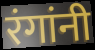
रंगांनी